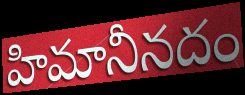
హిమానీనదం